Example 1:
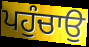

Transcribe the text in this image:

ਪਹੁੰਚਾਉ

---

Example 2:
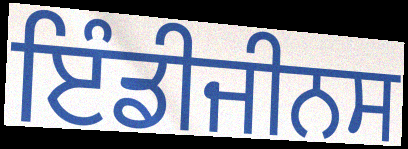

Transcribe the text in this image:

ਇੰਡੀਜੀਨਸ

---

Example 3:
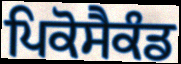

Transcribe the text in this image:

ਪਿਕੋਸੈਕੰਡ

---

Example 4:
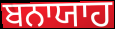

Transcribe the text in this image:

ਬਨਾਯਾਹ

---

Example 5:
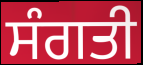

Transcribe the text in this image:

ਸੰਗਤੀ